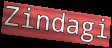
Zindagi